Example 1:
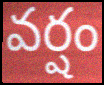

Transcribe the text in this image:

వర్షం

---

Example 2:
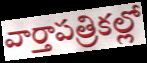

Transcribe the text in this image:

వార్తాపత్రికల్లో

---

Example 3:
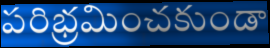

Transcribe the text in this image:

పరిభ్రమించకుండా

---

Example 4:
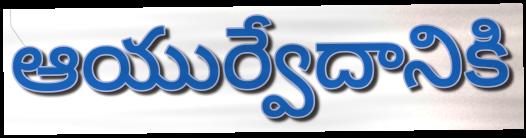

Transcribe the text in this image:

ఆయుర్వేదానికి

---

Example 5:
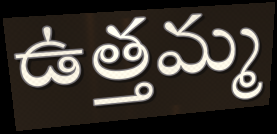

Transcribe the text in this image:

ఉత్తమ్మ